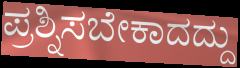
ಪ್ರಶ್ನಿಸಬೇಕಾದದ್ದು